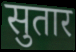
सुतार